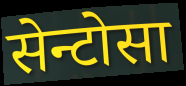
सेन्टोसा